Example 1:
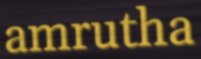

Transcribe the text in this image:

amrutha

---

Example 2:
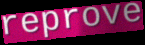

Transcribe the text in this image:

reprove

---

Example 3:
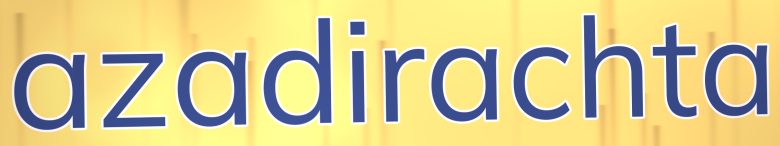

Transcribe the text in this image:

azadirachta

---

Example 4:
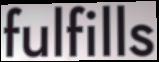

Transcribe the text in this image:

fulfills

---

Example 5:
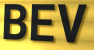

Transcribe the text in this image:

BEV